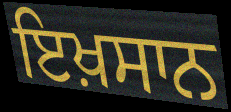
ਇਖ਼ਸਾਨ